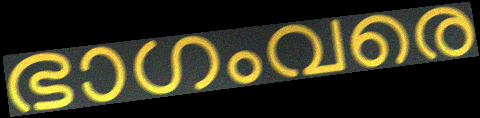
ഭാഗംവരെ